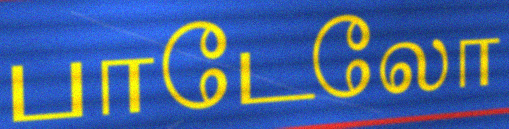
பாடேலோ